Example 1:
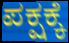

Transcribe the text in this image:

ಪಕ್ಷಕ್ಕೆ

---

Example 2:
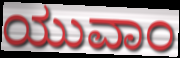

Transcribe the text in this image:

ಯುವಾಂ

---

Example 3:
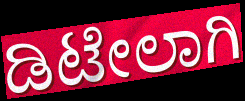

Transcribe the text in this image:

ಡಿಟೇಲಾಗಿ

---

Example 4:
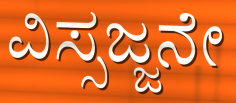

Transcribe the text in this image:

ವಿಸ್ಸಜ್ಜನೇ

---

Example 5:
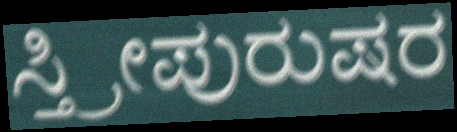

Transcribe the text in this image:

ಸ್ತ್ರೀಪುರುಷರ